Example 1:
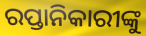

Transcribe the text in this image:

ରପ୍ତାନିକାରୀଙ୍କୁ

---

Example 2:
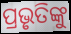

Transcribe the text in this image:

ପ୍ରଭୃତିଙ୍କୁ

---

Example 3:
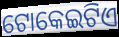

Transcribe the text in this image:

ଟୋକେଇଟିଏ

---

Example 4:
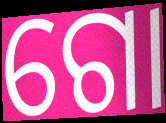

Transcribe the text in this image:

ଗୋ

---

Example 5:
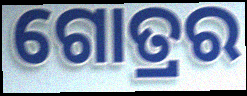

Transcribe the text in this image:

ଗୋତ୍ରର